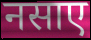
नसाए